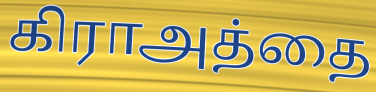
கிராஅத்தை